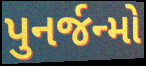
પુનર્જન્મો